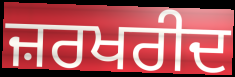
ਜ਼ਰਖਰੀਦ